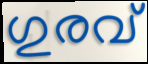
ഗുരവ്